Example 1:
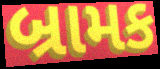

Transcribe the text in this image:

બ્રામક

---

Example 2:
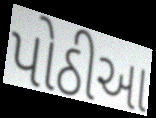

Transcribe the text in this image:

પોઠીઆ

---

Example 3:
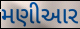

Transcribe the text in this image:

મણીઆર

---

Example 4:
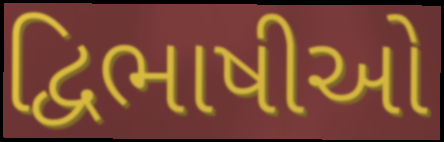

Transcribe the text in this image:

દ્વિભાષીઓ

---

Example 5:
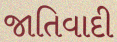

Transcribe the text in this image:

જાતિવાદી